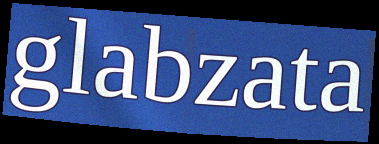
glabzata